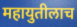
महायुतीलाच